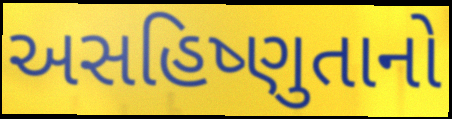
અસહિષ્ણુતાનો